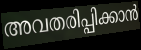
അവതരിപ്പിക്കാൻ